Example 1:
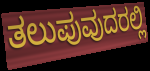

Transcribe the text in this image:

ತಲುಪುವುದರಲ್ಲಿ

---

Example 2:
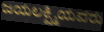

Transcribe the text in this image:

ಜಯಲಕ್ಷ್ಮಿಯವರು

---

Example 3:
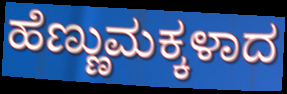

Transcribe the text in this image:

ಹೆಣ್ಣುಮಕ್ಕಳಾದ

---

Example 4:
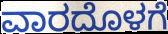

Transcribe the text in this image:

ವಾರದೊಳಗೆ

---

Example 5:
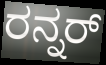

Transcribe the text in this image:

ರನ್ನರ್